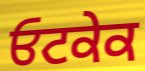
ਓਟਕੇਕ